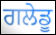
ਗਲੇਡੂ